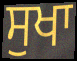
ਸੁਖਾ